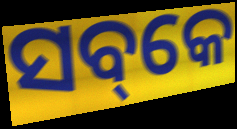
ସବ୍‌କେ